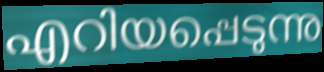
എറിയപ്പെടുന്നു